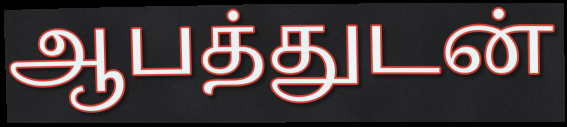
ஆபத்துடன்